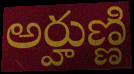
అర్హుణ్ణి